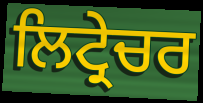
ਲਿਟ੍ਰੇਚਰ